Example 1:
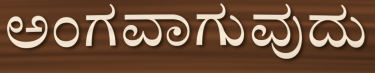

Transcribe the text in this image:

ಅಂಗವಾಗುವುದು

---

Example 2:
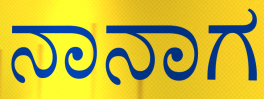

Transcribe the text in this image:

ನಾನಾಗ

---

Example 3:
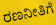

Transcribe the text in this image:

ರಣನೀತಿಗೆ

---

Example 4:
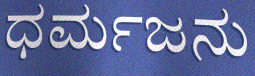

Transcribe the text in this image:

ಧರ್ಮಜನು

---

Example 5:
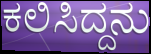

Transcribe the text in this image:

ಕಲಿಸಿದ್ದನು